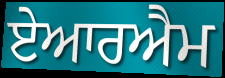
ਏਆਰਐਮ